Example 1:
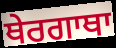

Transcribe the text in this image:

ਥੇਰਗਾਥਾ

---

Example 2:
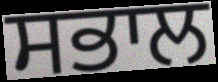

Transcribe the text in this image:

ਸਭਾਲ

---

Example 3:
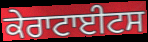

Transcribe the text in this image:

ਕੇਰਾਟਾਈਟਸ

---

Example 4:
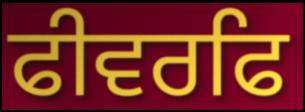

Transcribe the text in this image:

ਫੀਵਰਫਿ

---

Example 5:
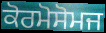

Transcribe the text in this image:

ਕੋਰਮੋਸੋਮਜ